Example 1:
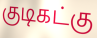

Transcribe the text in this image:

குடிகட்கு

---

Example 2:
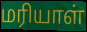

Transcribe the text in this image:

மரியாள்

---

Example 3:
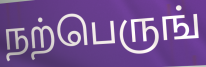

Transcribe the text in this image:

நற்பெருங்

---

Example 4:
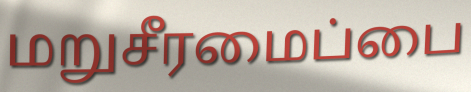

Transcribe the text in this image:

மறுசீரமைப்பை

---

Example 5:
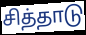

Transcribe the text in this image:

சித்தாடு